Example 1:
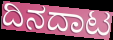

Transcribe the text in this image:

ದಿನದಾಟ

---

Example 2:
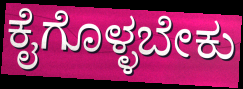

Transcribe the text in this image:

ಕೈಗೊಳ್ಳಬೇಕು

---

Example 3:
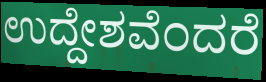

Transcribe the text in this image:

ಉದ್ದೇಶವೆಂದರೆ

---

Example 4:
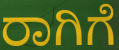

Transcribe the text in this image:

ರಾಗಿಗೆ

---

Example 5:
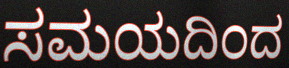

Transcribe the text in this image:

ಸಮಯದಿಂದ